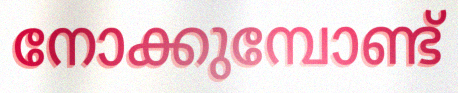
നോക്കുമ്പോണ്ട്